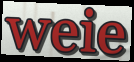
weie